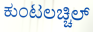
ಕುಂಟಲಚ್ಚಿಲ್